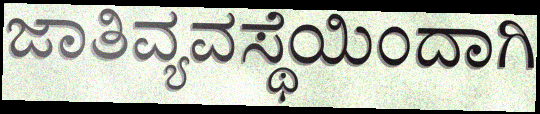
ಜಾತಿವ್ಯವಸ್ಥೆಯಿಂದಾಗಿ